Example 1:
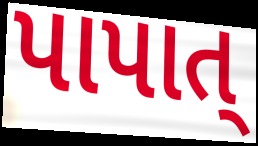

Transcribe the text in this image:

પાપાત્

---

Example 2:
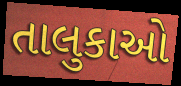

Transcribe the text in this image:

તાલુકાઓ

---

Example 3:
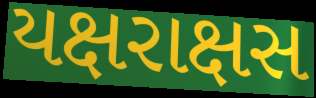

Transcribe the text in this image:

યક્ષરાક્ષસ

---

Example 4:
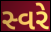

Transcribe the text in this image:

સ્વરે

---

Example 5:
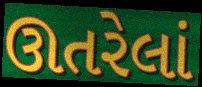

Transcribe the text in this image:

ઊતરેલાં